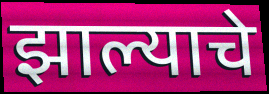
झाल्याचे